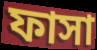
ফাসা